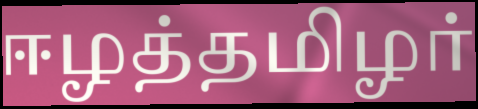
ஈழத்தமிழர்